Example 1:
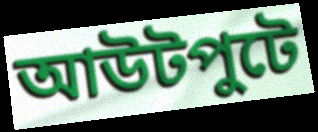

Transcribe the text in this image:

আউটপুটে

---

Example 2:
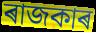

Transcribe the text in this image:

ৰাজকাৰ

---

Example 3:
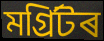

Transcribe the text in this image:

মৰ্গ্ৰিটৰ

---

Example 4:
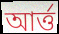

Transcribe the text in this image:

আৰ্ত্ত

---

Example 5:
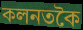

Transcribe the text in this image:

কলনতকৈ